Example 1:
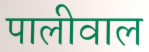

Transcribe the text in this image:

पालीवाल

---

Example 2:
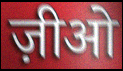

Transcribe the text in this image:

ज़ीओ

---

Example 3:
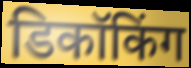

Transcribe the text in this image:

डिकॉकिंग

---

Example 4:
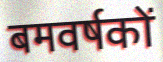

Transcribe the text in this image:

बमवर्षकों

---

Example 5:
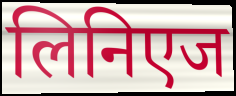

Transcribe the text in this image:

लिनिएज